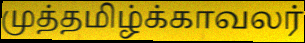
முத்தமிழ்க்காவலர்